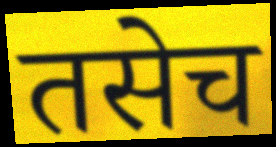
तसेच